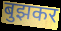
बुझकर